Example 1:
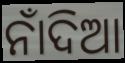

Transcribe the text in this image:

ନାଁଦିଆ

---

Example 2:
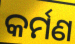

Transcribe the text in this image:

କର୍ମଣ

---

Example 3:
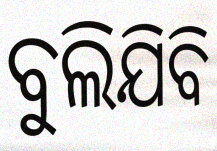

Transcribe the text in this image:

ବୁଲିଯିବି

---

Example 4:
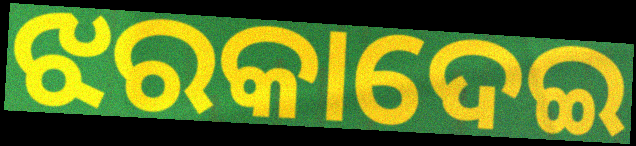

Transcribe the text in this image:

ଝରକାଦେଇ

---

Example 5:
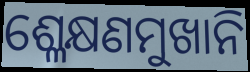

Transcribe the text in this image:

ଶ୍ଳେକ୍ଷଣମୁଖାନି